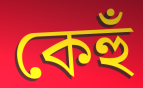
কেহুঁ